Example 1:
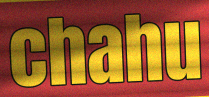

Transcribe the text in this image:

chahu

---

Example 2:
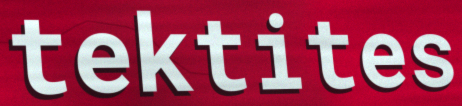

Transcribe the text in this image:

tektites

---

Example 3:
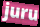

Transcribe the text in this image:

juru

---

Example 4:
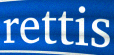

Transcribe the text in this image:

rettis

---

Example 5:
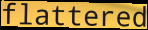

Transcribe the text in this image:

flattered